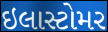
ઇલાસ્ટોમર